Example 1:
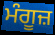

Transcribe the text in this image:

ਮੰਗੂਜ਼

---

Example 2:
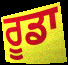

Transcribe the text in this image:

ਰੂਡਾ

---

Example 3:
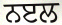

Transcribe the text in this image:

ਨੲਲ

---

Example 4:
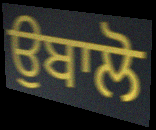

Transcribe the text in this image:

ਉਬਾਲੋ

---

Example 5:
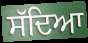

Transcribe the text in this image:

ਸੱਦਿਆ